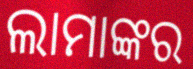
ଲାମାଙ୍କର